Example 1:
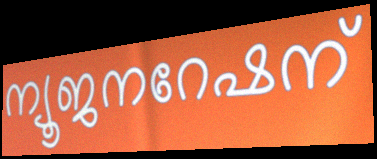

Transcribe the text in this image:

ന്യൂജനറേഷന്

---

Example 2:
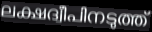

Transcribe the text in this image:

ലക്ഷദ്വീപിനടുത്ത്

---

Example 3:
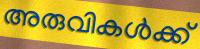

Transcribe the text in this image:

അരുവികൾക്ക്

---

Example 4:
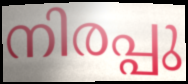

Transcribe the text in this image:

നിരപ്പു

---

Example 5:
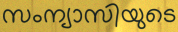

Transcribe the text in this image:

സംന്യാസിയുടെ